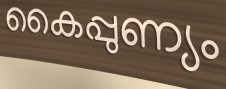
കൈപ്പുണ്യം